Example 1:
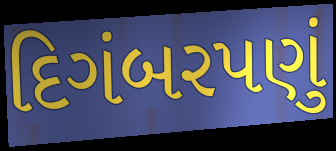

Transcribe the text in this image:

દિગંબરપણું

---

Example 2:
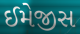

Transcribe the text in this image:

ઈમેજીસ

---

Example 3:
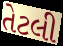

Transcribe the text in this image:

તેટલી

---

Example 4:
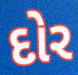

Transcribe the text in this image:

દોર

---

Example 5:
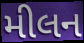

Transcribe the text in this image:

મીલન